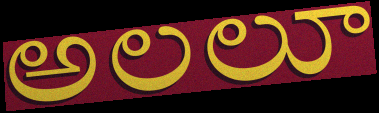
అలలూ